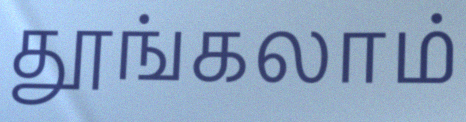
தூங்கலாம்